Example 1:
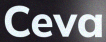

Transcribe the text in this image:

Ceva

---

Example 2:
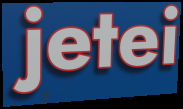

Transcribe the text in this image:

jetei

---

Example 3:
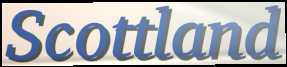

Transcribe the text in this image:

Scottland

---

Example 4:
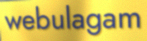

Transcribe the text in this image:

webulagam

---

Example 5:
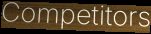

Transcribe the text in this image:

Competitors